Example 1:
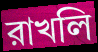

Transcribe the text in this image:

রাখলি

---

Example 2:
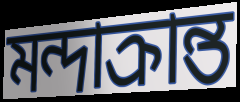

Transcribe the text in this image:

মন্দাক্রান্ত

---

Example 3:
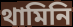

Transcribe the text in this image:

থামিনি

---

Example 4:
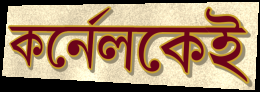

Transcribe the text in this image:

কর্নেলকেই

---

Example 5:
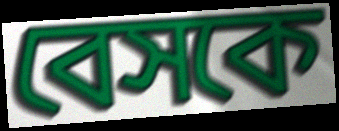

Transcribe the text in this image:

বেসকে